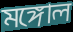
মঙ্গোল